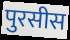
पुरसीस